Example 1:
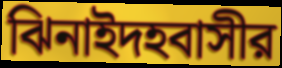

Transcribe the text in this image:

ঝিনাইদহবাসীর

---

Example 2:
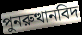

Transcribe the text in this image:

পুনরুত্থানবিদ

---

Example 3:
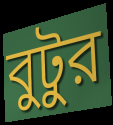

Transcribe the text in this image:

বুটুর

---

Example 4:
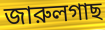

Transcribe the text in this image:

জারুলগাছ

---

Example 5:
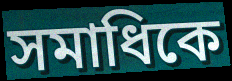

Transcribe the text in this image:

সমাধিকে